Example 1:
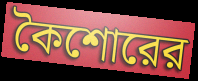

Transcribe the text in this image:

কৈশোরের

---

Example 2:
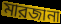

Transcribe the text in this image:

মারজানা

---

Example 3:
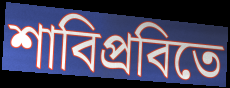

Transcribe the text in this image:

শাবিপ্রবিতে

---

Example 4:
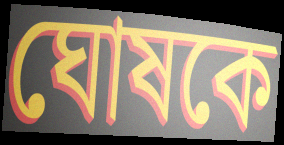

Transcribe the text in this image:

ঘোষকে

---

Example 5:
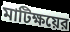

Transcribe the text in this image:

মাটিক্ষয়ের